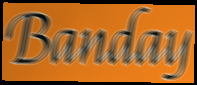
Banday